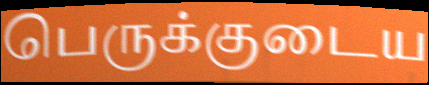
பெருக்குடைய